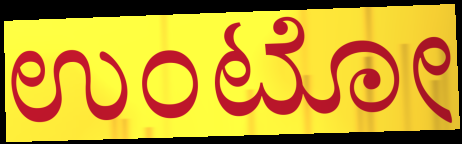
ಉಂಟೋ